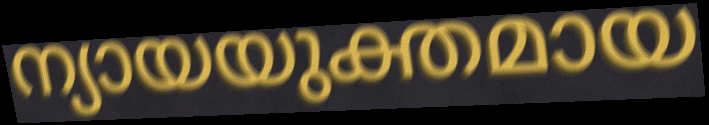
ന്യായയുക്തമായ